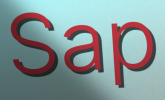
Sap